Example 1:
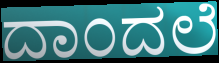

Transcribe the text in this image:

ದಾಂದಲೆ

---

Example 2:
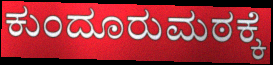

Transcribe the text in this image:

ಕುಂದೂರುಮಠಕ್ಕೆ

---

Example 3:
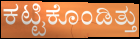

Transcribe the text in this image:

ಕಟ್ಟಿಕೊಂಡಿತ್ತು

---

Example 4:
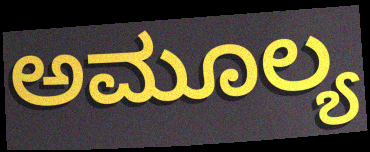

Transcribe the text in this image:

ಅಮೂಲ್ಯ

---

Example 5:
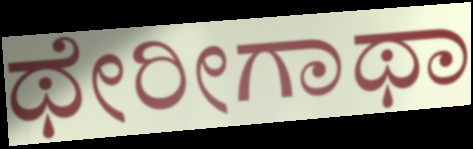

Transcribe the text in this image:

ಥೇರೀಗಾಥಾ